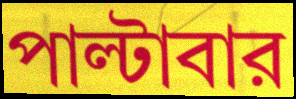
পাল্টাবার